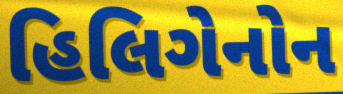
હિલિગેનોન